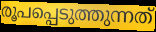
രൂപപ്പെടുത്തുന്നത്